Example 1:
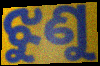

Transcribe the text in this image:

ଝୁଣୁ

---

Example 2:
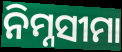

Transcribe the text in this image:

ନିମ୍ନସୀମା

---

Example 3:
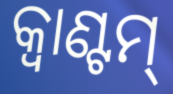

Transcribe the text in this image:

କ୍ଵାଣ୍ଟମ୍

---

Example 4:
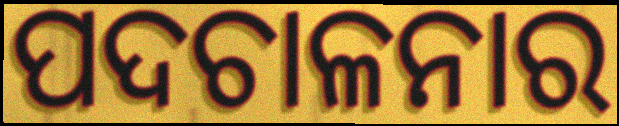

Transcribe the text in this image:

ପଦଚାଳନାର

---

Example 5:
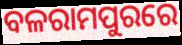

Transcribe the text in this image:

ବଳରାମପୁରରେ